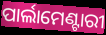
ପାର୍ଲାମେଣ୍ଟାରୀ